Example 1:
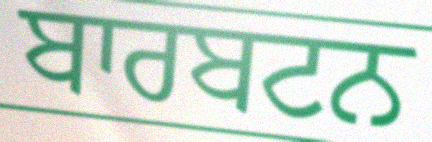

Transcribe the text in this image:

ਬਾਰਬਟਨ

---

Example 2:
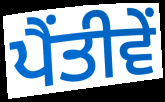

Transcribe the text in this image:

ਪੈਂਤੀਵੇਂ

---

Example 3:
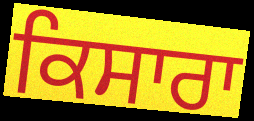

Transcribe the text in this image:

ਕਿਸਾਰਾ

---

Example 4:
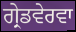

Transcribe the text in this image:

ਗ੍ਰੇਡਵੇਰਵਾ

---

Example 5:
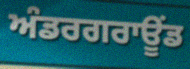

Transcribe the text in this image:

ਅੰਡਰਗਰਾਊੰਡ